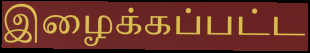
இழைக்கப்பட்ட